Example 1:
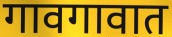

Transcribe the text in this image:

गावगावात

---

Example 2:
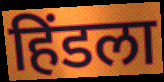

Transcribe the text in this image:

हिंडला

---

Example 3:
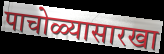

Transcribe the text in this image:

पाचोळ्यासारखा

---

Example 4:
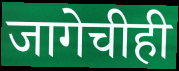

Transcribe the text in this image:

जागेचीही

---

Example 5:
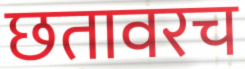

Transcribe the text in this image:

छतावरच